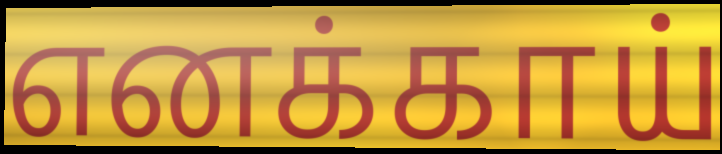
எனக்காய்